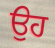
ਉਹ